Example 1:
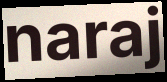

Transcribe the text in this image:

naraj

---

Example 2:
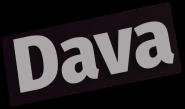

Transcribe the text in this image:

Dava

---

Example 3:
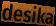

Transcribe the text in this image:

desika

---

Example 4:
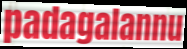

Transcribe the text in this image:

padagalannu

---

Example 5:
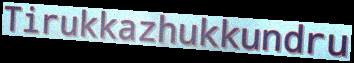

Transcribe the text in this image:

Tirukkazhukkundru